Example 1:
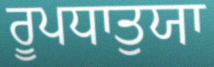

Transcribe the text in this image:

ਰੂਪਧਾਤੁਯਾ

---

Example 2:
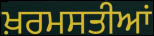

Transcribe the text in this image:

ਖ਼ਰਮਸਤੀਆਂ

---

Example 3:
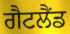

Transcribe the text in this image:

ਗੈਟਲੈਂਡ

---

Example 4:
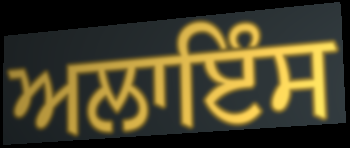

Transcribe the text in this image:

ਅਲਾਇੰਸ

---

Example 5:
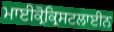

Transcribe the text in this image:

ਮਾਈਕ੍ਰੋਕ੍ਰਿਸਟਲਾਈਨ